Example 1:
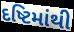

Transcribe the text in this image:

દષ્ટિમાંથી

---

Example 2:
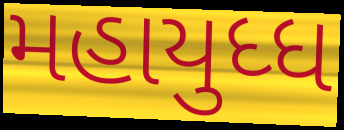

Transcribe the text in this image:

મહાયુધ્ધ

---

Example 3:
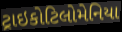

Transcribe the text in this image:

ટ્રાઇકોટિલોમેનિયા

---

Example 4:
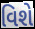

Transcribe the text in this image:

વિશે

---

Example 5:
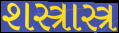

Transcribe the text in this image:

શસ્ત્રાસ્ત્ર